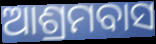
ଆଶ୍ରମବାସ